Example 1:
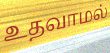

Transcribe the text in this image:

உதவாமல்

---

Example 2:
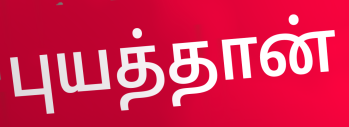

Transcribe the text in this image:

புயத்தான்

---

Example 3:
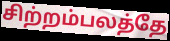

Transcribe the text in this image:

சிற்றம்பலத்தே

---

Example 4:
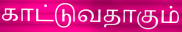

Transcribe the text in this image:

காட்டுவதாகும்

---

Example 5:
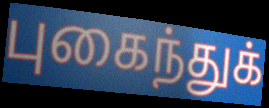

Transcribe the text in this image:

புகைந்துக்